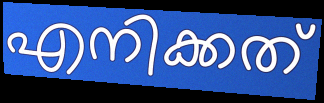
എനിക്കത്